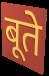
बूते